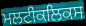
ਮਲਟੀਕਲਿਕਸ